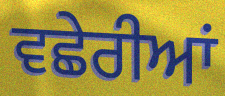
ਵਛੇਰੀਆਂ